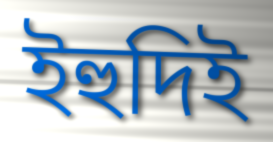
ইহুদিই